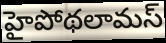
హైపోథలామస్